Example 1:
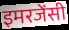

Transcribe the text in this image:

इमरजेंसी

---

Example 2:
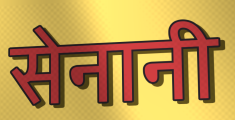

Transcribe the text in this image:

सेनानी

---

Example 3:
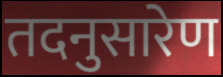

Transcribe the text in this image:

तदनुसारेण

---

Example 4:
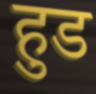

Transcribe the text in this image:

हुड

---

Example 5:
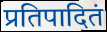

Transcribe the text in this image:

प्रतिपादितं